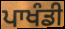
ਪਾਖੰਡੀ